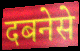
दबनेसे